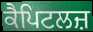
ਕੈਪਿਟਲਜ਼